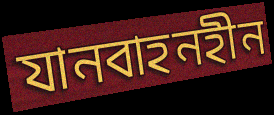
যানবাহনহীন